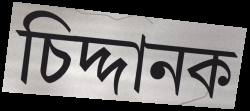
চিদ্দানক